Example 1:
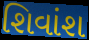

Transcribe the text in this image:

શિવાંશ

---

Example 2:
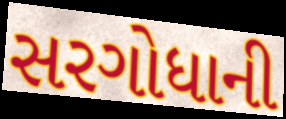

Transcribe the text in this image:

સરગોધાની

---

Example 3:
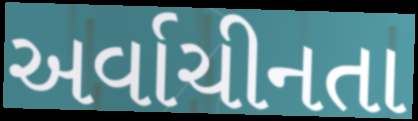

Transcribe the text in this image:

અર્વાચીનતા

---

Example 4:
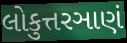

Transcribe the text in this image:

લોકુત્તરઞાણં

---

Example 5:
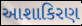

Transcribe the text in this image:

આશાકિરણ